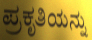
ಪ್ರಕೃತಿಯನ್ನು